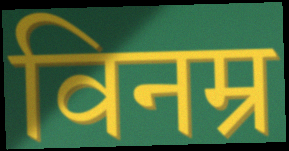
विनम्र